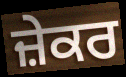
ਜ਼ੇਕਰ